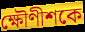
ক্ষৌণীশকে